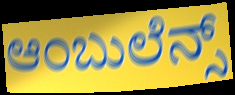
ಆಂಬುಲೆನ್ಸ್